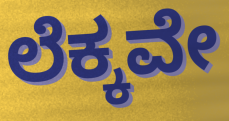
ಲೆಕ್ಕವೇ